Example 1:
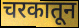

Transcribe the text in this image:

चरकातून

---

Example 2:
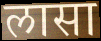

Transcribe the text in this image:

लासा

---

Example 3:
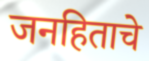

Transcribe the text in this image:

जनहिताचे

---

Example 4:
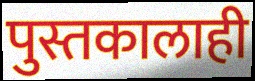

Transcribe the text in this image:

पुस्तकालाही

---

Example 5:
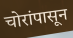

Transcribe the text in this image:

चोरांपासून